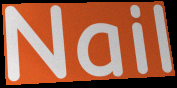
Nail